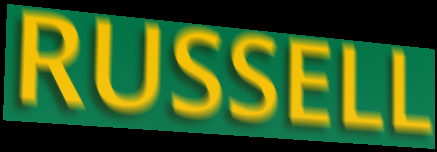
RUSSELL